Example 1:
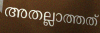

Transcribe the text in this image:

അതല്ലാത്തത്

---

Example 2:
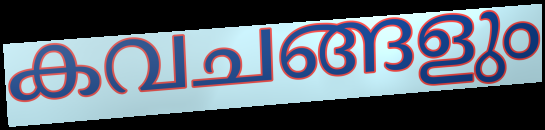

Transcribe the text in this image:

കവചങ്ങളും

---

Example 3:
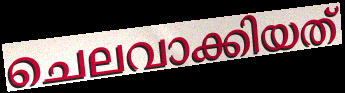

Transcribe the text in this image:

ചെലവാക്കിയത്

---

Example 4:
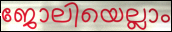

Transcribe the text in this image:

ജോലിയെല്ലാം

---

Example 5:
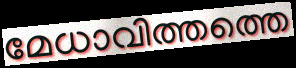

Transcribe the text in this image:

മേധാവിത്തത്തെ